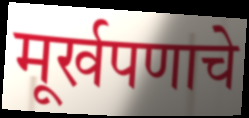
मूर्खपणाचे